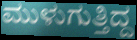
ಮುಳುಗುತ್ತಿದ್ದ